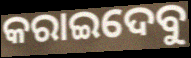
କରାଇଦେବୁ